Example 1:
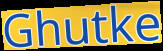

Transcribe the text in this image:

Ghutke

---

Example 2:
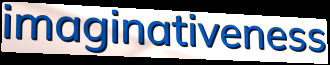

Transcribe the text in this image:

imaginativeness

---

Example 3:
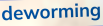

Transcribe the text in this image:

deworming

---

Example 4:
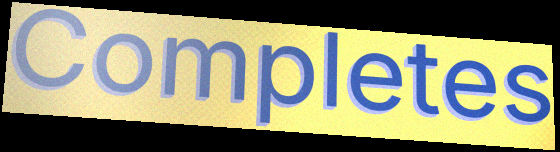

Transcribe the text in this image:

Completes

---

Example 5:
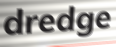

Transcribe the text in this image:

dredge